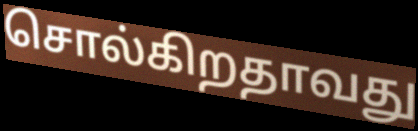
சொல்கிறதாவது